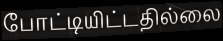
போட்டியிட்டதில்லை